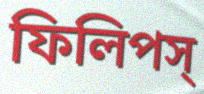
ফিলিপস্